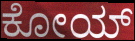
ಕೋಯ್